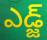
ఎడ్జ్